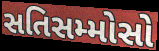
સતિસમ્મોસો